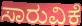
ಸಾರುವಿಕೆ